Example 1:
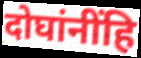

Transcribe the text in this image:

दोघांनींहि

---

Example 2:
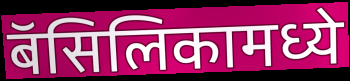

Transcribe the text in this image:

बॅसिलिकामध्ये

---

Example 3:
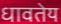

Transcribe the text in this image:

धावतेय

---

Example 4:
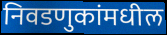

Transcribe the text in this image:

निवडणुकांमधील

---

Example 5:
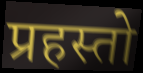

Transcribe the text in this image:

प्रहस्तो